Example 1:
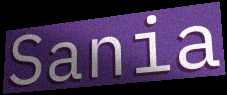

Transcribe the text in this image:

Sania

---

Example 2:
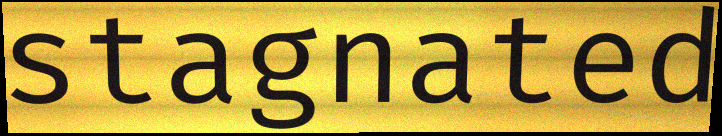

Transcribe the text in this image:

stagnated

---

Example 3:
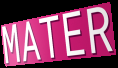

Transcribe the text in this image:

MATER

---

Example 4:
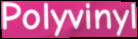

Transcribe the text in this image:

Polyvinyl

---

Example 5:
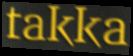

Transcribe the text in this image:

takka